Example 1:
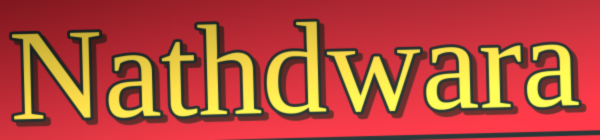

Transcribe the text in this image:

Nathdwara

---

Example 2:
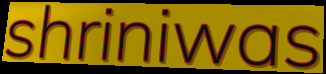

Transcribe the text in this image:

shriniwas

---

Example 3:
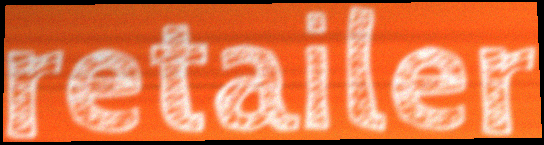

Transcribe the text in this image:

retailer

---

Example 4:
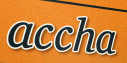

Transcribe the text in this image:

accha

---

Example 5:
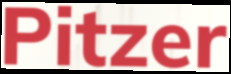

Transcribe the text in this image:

Pitzer